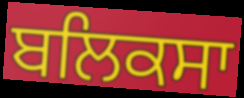
ਬਲਿਕਸਾ